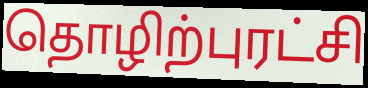
தொழிற்புரட்சி